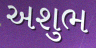
અશુભ